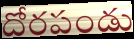
దోరపండు